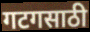
गटगसाठी